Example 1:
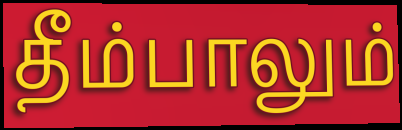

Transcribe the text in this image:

தீம்பாலும்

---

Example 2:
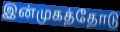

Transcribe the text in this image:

இன்முகத்தோடு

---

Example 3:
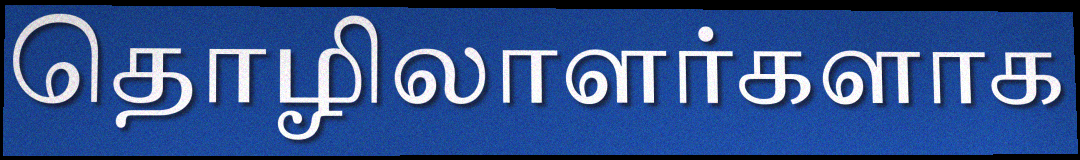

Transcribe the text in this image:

தொழிலாளர்களாக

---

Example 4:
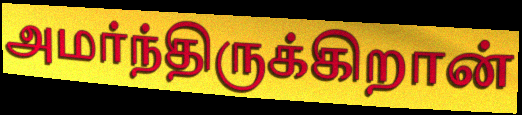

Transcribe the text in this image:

அமர்ந்திருக்கிறான்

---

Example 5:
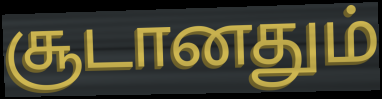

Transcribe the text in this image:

சூடானதும்